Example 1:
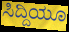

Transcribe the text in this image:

ಸಿದ್ದಿಯೂ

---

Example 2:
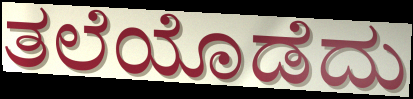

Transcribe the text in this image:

ತಲೆಯೊಡೆದು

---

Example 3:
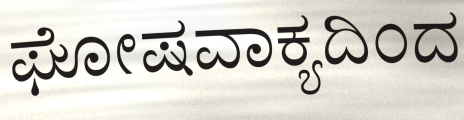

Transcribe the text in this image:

ಘೋಷವಾಕ್ಯದಿಂದ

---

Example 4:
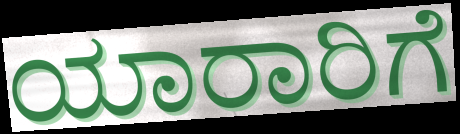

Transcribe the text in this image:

ಯಾರಾರಿಗೆ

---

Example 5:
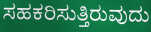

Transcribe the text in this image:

ಸಹಕರಿಸುತ್ತಿರುವುದು